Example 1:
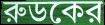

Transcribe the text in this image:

রুডকের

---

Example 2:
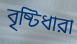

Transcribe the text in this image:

বৃষ্টিধারা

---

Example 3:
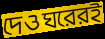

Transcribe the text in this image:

দেওঘরেরই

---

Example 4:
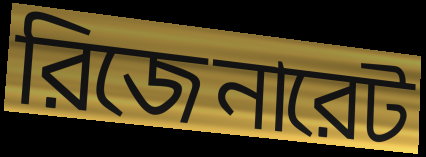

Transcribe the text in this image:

রিজেনারেট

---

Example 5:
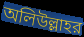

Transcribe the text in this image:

অলিউল্লাহর